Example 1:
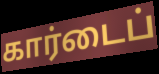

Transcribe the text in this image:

கார்டைப்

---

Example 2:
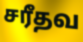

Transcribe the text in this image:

சரீதவ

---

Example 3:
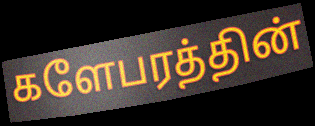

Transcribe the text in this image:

களேபரத்தின்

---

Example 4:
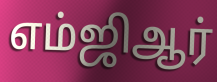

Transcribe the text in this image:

எம்ஜிஆர்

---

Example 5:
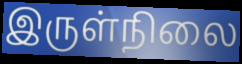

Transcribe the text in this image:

இருள்நிலை